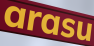
arasu